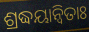
ଶ୍ରଦ୍ଧୟାନ୍ୱିତାଃ